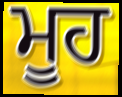
ਮੂਹ